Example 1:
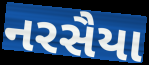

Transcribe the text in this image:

નરસૈયા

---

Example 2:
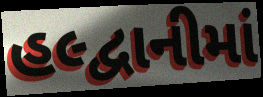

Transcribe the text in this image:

હલ્દ્વાનીમાં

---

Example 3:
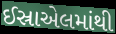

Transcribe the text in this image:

ઈસ્રાએલમાંથી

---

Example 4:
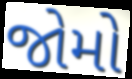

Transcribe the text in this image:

જોમો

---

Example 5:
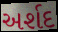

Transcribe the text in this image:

અર્શદ